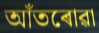
আঁতৰোৱা